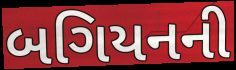
બગિયનની